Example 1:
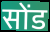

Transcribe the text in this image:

सोंड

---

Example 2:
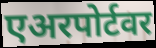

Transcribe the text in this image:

एअरपोर्टवर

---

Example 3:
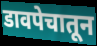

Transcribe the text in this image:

डावपेचातून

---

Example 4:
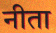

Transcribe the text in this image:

नीता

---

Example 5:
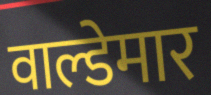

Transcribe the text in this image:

वाल्डेमार